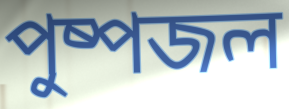
পুষ্পজল